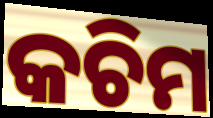
କଚିମ